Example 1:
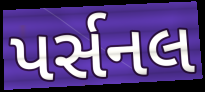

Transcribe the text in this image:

પર્સનલ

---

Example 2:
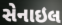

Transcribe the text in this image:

સેનાઇલ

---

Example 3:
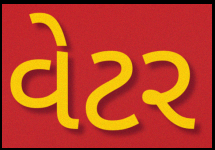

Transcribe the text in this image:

વેટર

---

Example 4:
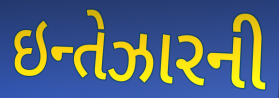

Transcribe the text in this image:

ઇન્તેઝારની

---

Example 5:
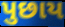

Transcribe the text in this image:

પુછાય